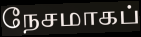
நேசமாகப்